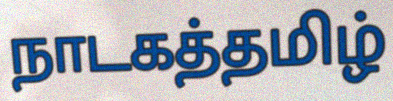
நாடகத்தமிழ்